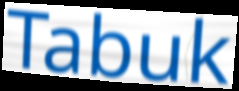
Tabuk